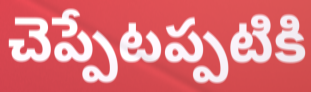
చెప్పేటప్పటికి